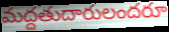
మద్దతుదారులందరూ